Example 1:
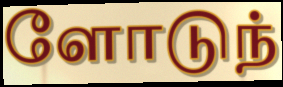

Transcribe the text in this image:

ளோடுந்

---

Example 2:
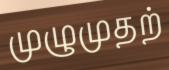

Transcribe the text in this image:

முழுமுதற்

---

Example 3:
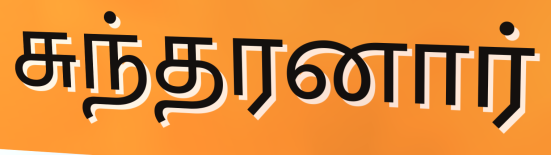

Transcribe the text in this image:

சுந்தரனார்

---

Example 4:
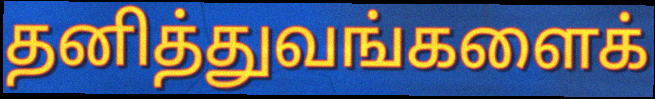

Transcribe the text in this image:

தனித்துவங்களைக்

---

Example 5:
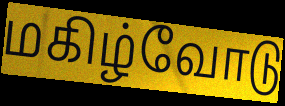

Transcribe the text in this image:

மகிழ்வோடு